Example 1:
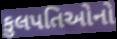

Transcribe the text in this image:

કુલપતિઓનો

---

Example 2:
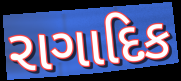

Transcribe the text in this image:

રાગાદિક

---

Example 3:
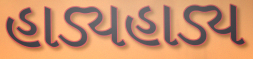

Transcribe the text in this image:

હાડ્યહાડ્ય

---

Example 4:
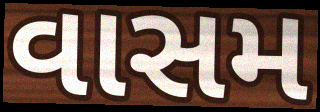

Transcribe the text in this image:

વાસમ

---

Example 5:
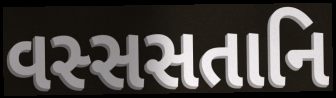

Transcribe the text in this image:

વસ્સસતાનિ